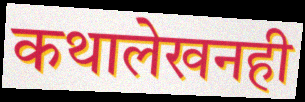
कथालेखनही